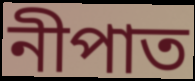
নীপাত